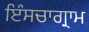
ਇੰਸਚਾਗ੍ਰਾਮ